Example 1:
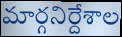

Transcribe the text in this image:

మార్గనిర్దేశాల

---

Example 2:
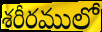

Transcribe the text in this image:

శరీరములో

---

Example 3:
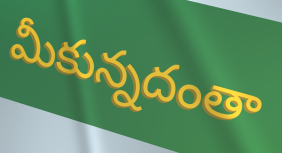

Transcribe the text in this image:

మీకున్నదంతా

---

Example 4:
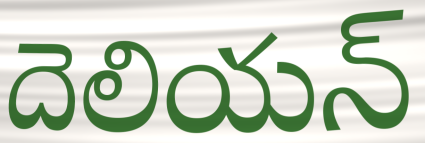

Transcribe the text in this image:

దెలియన్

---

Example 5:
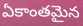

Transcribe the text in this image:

ఏకాంతమైన